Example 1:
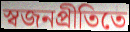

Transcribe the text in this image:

স্বজনপ্রীতিতে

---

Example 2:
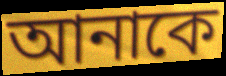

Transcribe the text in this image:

আনাকে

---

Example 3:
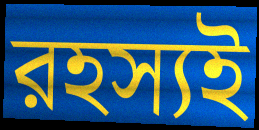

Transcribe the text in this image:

রহস্যই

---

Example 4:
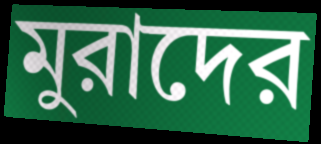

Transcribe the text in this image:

মুরাদের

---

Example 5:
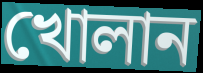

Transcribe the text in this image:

খোলান